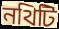
নথিটি